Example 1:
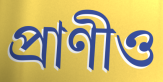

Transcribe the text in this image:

প্রাণীও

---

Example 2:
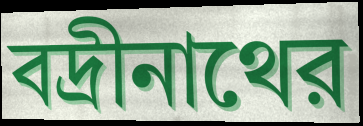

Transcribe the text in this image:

বদ্রীনাথের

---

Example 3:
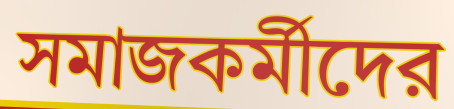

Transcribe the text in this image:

সমাজকর্মীদের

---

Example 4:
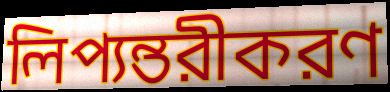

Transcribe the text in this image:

লিপ্যন্তরীকরণ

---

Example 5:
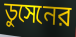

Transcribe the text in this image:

ডুসেনের